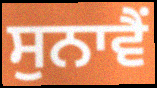
ਸੁਨਾਵੈਂ